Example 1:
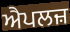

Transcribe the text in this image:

ਐਪਲਜ਼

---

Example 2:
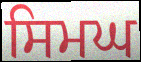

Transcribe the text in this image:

ਸਿਮਘ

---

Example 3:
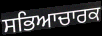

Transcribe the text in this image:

ਸਭਿਆਚਾਰਕ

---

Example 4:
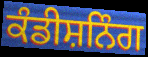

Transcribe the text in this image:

ਕੰਡੀਸ਼ਨਿੰਗ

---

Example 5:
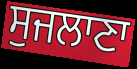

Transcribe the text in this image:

ਸੁਜਲਾਣਾ